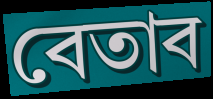
বেতাব